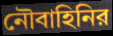
নৌবাহিনির